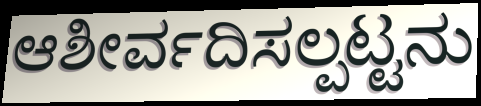
ಆಶೀರ್ವದಿಸಲ್ಪಟ್ಟನು